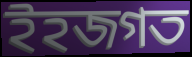
ইহজগত